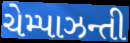
ચેમ્પાઝન્તી